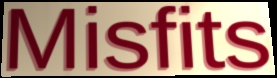
Misfits